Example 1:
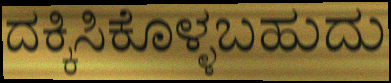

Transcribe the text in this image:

ದಕ್ಕಿಸಿಕೊಳ್ಳಬಹುದು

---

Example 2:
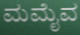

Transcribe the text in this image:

ಮಮೈವ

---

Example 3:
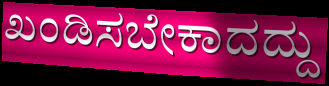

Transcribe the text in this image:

ಖಂಡಿಸಬೇಕಾದದ್ದು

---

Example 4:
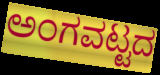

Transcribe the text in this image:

ಅಂಗವಟ್ಟದ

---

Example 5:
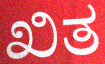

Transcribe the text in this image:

ಖಿತ